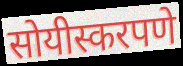
सोयीस्करपणे